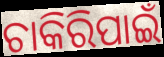
ଚାକିରିପାଇଁ